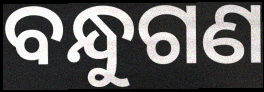
ବନ୍ଧୁଗଣ